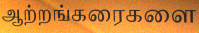
ஆற்றங்கரைகளை